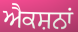
ਐਕਸ਼ਨਾਂ